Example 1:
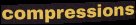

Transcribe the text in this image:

compressions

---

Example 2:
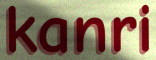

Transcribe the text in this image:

kanri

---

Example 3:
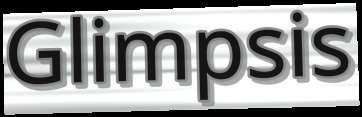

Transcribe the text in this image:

Glimpsis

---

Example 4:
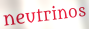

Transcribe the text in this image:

neutrinos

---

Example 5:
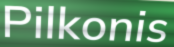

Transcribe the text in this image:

Pilkonis